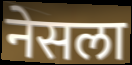
नेसला